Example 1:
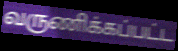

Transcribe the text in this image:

வருணிக்கப்பட்ட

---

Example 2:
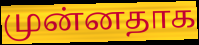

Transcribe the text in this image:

முன்னதாக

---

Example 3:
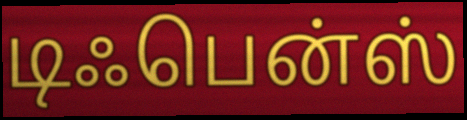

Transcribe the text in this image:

டிஃபென்ஸ்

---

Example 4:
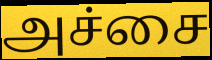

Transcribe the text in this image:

அச்சை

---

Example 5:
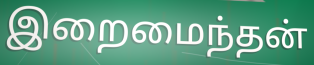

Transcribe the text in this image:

இறைமைந்தன்